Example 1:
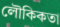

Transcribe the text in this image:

লৌকিকতা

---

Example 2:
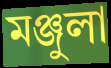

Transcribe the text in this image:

মঞ্জুলা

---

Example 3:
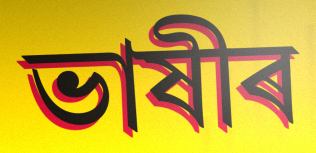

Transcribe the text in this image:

ভাষীৰ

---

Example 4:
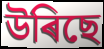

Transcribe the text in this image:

উৰিছে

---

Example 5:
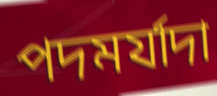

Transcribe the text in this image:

পদমৰ্যাদা